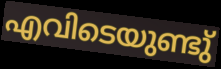
എവിടെയുണ്ടു്